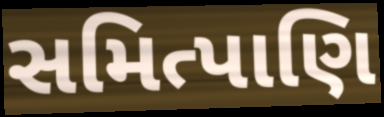
સમિત્પાણિ